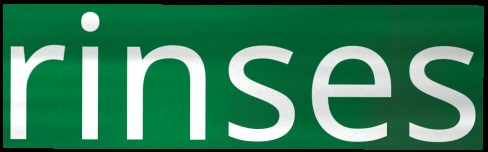
rinses